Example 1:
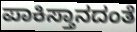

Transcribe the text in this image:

ಪಾಕಿಸ್ತಾನದಂತೆ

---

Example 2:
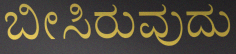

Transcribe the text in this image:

ಬೀಸಿರುವುದು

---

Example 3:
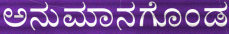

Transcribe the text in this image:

ಅನುಮಾನಗೊಂಡ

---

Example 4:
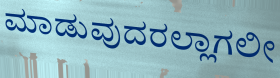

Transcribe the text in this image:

ಮಾಡುವುದರಲ್ಲಾಗಲೀ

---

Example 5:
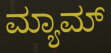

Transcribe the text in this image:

ಮ್ಯಾಮ್